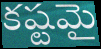
కష్టమై